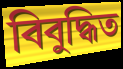
বিবুদ্ধিত